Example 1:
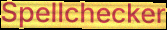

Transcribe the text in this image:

Spellchecker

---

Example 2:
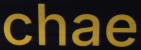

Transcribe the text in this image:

chae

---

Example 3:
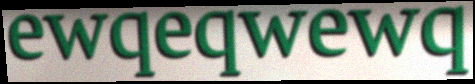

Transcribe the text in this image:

ewqeqwewq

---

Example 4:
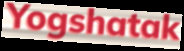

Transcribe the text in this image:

Yogshatak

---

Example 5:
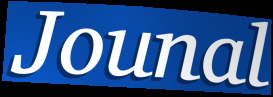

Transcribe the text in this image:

Jounal